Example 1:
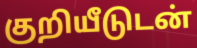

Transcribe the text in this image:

குறியீடுடன்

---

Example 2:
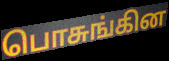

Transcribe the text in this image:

பொசுங்கின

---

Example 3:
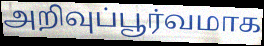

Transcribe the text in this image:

அறிவுப்பூர்வமாக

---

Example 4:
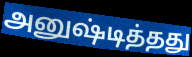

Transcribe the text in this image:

அனுஷ்டித்தது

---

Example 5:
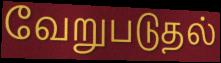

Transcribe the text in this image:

வேறுபடுதல்